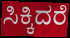
ಸಿಕ್ಕಿದರೆ